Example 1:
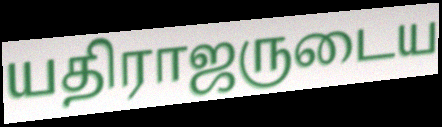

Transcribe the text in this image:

யதிராஜருடைய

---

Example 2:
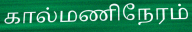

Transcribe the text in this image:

கால்மணிநேரம்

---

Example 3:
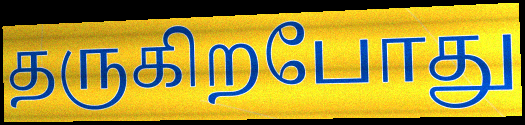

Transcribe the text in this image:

தருகிறபோது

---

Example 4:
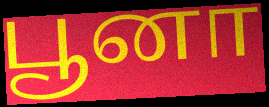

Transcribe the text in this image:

பூனா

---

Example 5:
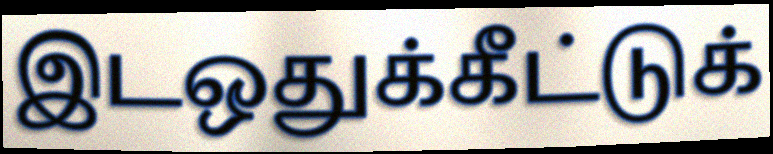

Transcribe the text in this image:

இடஒதுக்கீட்டுக்